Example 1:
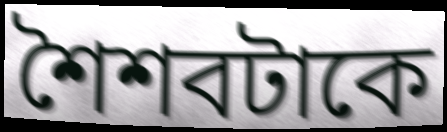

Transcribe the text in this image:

শৈশবটাকে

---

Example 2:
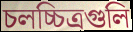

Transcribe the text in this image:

চলচ্চিত্রগুলি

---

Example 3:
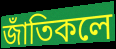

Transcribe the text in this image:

জাঁতিকলে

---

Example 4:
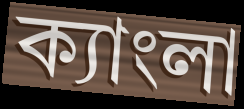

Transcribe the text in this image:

ক্যাংলা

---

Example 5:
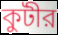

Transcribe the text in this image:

কুটীর